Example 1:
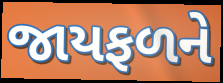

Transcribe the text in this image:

જાયફળને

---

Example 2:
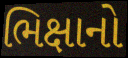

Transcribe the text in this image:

ભિક્ષાનો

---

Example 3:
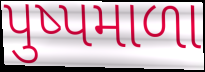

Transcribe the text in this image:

પુષ્પમાળા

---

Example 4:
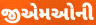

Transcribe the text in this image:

જીએમઓની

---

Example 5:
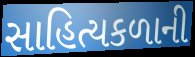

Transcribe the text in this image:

સાહિત્યકળાની